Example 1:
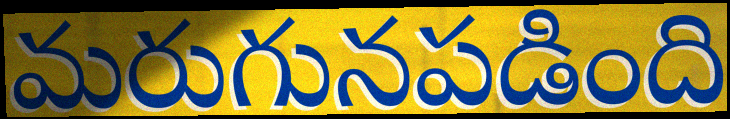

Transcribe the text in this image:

మరుగునపడింది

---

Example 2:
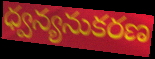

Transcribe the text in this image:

ధ్వన్యనుకరణ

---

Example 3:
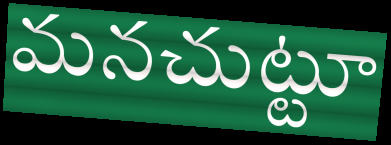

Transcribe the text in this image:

మనచుట్టూ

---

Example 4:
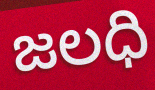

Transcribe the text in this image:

జలధి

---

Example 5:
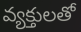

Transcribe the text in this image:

వ్యక్తులతో